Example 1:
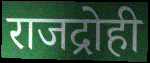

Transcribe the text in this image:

राजद्रोही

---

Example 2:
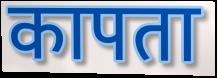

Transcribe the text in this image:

कापता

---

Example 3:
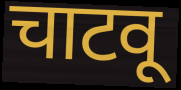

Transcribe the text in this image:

चाटवू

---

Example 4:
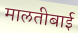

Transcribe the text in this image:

मालतीबाई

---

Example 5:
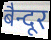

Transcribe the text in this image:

बैन्दूर